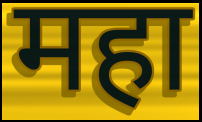
महा